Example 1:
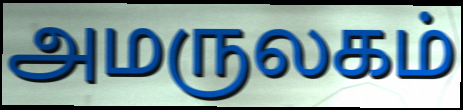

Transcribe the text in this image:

அமருலகம்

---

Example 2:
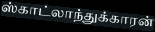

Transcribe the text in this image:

ஸ்காட்லாந்துக்காரன்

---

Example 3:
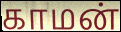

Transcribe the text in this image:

காமன்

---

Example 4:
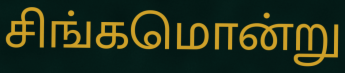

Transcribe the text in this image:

சிங்கமொன்று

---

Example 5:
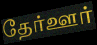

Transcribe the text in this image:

தேர்ஊர்